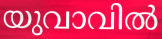
യുവാവിൽ